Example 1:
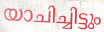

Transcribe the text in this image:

യാചിച്ചിട്ടും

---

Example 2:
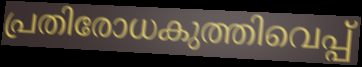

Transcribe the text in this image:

പ്രതിരോധകുത്തിവെപ്പ്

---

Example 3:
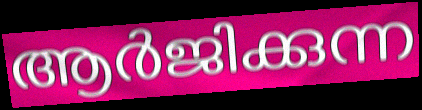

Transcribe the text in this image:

ആർജിക്കുന്ന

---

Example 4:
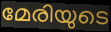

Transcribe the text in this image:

മേരിയുടെ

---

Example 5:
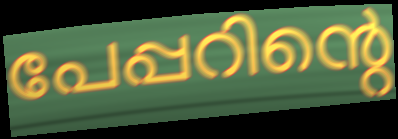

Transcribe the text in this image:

പേപ്പറിന്റെ